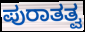
ಪುರಾತತ್ವ